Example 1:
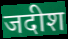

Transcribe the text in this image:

जदीश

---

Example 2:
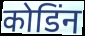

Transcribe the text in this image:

कोडिंन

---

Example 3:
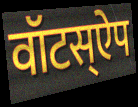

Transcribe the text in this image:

वॉटस्ऐप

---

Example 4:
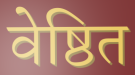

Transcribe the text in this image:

वेष्ठित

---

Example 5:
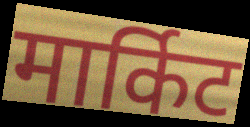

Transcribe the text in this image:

मार्किट